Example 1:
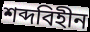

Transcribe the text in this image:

শব্দবিহীন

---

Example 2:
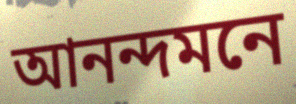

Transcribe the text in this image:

আনন্দমনে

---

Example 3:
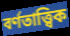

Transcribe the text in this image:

বৰ্ণতাত্ত্বিক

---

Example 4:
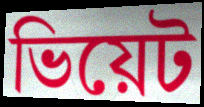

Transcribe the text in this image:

ভিয়েট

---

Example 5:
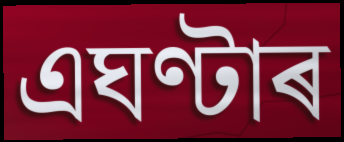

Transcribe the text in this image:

এঘণ্টাৰ